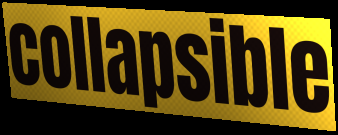
collapsible